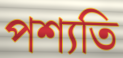
পশ্যতি